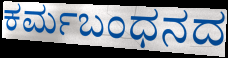
ಕರ್ಮಬಂಧನದ